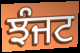
ਝੰਜਟ